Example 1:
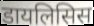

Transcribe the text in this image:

डायलिसिस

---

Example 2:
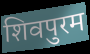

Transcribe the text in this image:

शिवपुरम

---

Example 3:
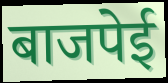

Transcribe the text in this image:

बाजपेई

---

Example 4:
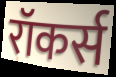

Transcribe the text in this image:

रॉकर्स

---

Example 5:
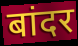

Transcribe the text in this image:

बांदर